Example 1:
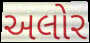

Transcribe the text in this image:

અલોર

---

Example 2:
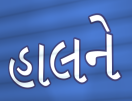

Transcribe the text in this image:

હાલને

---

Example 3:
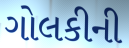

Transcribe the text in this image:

ગોલકીની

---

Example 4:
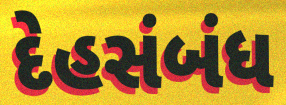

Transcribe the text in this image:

દેહસંબંધ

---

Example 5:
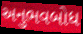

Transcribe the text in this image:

અનુભવબોધ